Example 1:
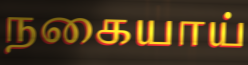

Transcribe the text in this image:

நகையாய்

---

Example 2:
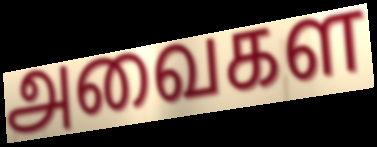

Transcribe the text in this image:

அவைகள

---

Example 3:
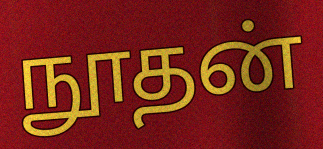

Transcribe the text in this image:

நூதன்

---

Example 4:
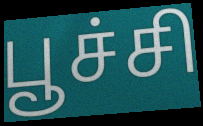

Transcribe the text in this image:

பூச்சி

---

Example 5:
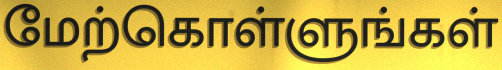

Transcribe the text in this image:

மேற்கொள்ளுங்கள்